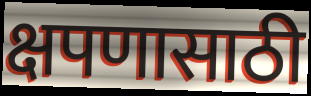
क्षपणासाठी